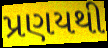
પ્રણયથી